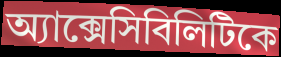
অ্যাক্সেসিবিলিটিকে